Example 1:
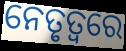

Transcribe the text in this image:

ନେତୃତ୍ଵରେ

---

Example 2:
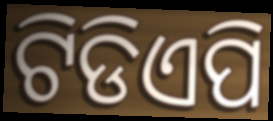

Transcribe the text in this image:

ଟିଡିଏପି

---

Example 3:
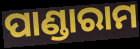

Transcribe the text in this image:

ପାଣ୍ଡାରାମ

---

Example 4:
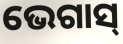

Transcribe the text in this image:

ଭେଗାସ୍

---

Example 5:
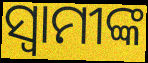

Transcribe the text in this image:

ସ୍ୱାମୀଙ୍କ